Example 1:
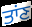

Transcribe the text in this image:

ਤਾਂਣ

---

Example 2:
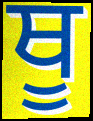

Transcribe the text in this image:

ਥੂ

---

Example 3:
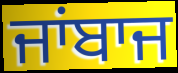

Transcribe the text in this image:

ਜਾਂਬਾਜ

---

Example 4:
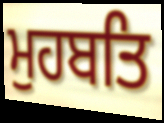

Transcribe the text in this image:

ਮੁਹਬਤਿ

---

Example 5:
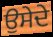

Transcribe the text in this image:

ਉਸੇਦੇ